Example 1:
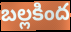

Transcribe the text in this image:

బల్లకింద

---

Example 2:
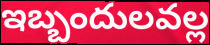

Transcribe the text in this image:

ఇబ్బందులవల్ల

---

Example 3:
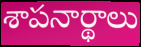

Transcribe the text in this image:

శాపనార్థాలు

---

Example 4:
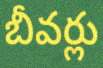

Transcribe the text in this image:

బీవర్లు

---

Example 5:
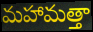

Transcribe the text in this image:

మహామత్తా